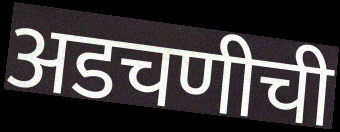
अडचणीची